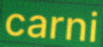
carni